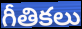
గీతికలు